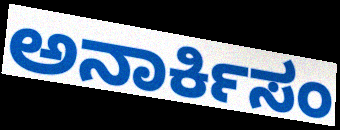
ಅನಾರ್ಕಿಸಂ